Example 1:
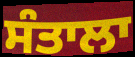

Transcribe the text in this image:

ਸੰਤਾਲਾ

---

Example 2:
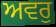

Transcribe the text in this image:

ਅਵਰੁ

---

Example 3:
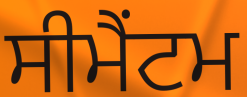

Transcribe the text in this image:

ਸੀਮੈਂਟਮ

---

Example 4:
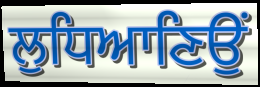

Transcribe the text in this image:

ਲੁਧਿਆਣਿਉਂ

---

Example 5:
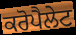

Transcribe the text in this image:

ਕਰੋਪੈਲੇਟ